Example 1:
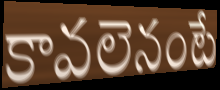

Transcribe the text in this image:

కావలెనంటే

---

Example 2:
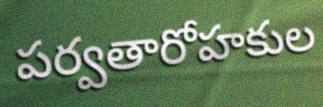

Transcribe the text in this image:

పర్వతారోహకుల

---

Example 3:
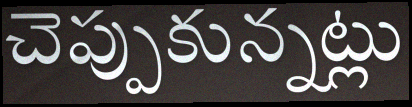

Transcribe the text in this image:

చెప్పుకున్నట్లు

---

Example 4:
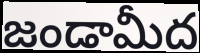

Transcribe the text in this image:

జండామీద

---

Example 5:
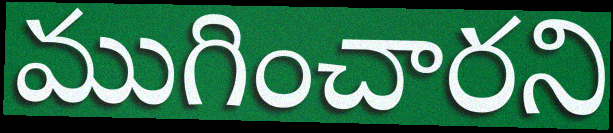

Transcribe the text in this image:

ముగించారని